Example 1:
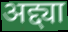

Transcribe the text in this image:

अद्द्या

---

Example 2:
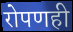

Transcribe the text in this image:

रोपणही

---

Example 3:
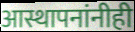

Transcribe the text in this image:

आस्थापनांनीही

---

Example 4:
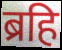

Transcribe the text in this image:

ब्रहि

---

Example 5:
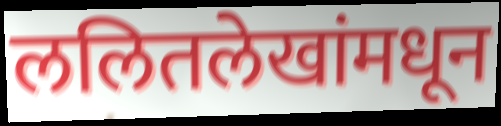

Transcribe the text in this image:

ललितलेखांमधून